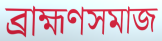
ব্রাহ্মণসমাজ